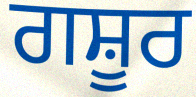
ਗਸ਼ੂਰ